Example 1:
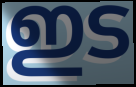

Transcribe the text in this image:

ഇട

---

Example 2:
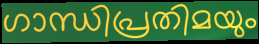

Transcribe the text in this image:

ഗാന്ധിപ്രതിമയും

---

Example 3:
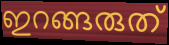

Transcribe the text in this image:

ഇറങ്ങരുത്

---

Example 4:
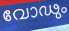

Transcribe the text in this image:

വോഢും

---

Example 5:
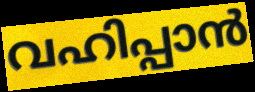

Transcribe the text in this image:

വഹിപ്പാൻ